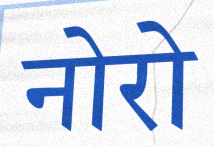
नोरो